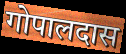
गोपालदास